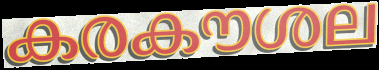
കരകൗശല